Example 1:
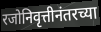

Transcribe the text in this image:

रजोनिवृत्तीनंतरच्या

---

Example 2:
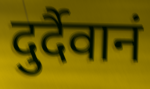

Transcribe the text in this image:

दुर्दैवानं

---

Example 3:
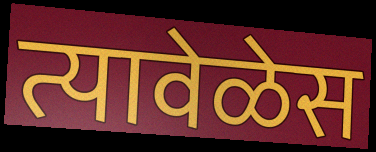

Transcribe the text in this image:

त्यावेळेस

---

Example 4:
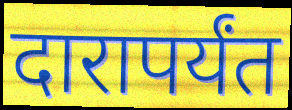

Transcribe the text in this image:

दारापर्यंत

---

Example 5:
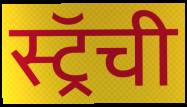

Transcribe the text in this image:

स्ट्रॅची